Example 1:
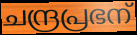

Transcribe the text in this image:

ചന്ദ്രപ്രഭന്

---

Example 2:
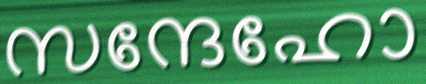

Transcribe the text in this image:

സന്ദേഹോ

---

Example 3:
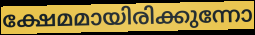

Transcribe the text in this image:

ക്ഷേമമായിരിക്കുന്നോ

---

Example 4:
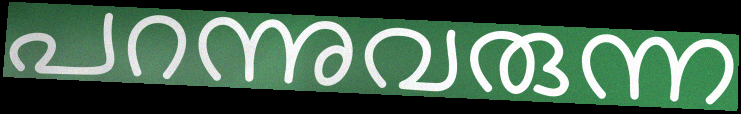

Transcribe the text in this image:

പറന്നുവരുന്ന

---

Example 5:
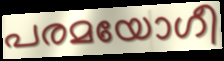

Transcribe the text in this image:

പരമയോഗീ